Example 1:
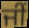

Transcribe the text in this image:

ਜੀਂ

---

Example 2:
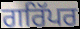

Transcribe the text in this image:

ਗਰਿੱਪਰ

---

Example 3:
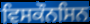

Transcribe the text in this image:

ਵਿਸਕੌਨਸਿਨ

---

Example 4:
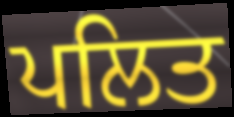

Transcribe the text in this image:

ਪਲਿਤ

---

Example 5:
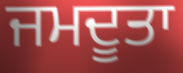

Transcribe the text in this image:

ਜਮਦੂਤਾ